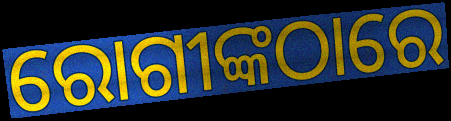
ରୋଗୀଙ୍କଠାରେ